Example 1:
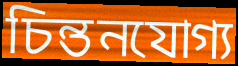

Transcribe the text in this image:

চিন্তনযোগ্য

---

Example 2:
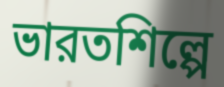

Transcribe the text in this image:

ভারতশিল্পে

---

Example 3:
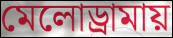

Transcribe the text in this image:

মেলোড্রামায়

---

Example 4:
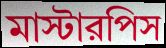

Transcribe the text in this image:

মাস্টারপিস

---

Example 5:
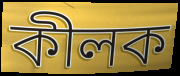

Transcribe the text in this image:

কীলক